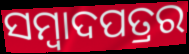
ସମ୍ବାଦପତ୍ରର